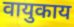
वायुकाय